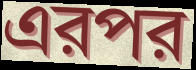
এরপর